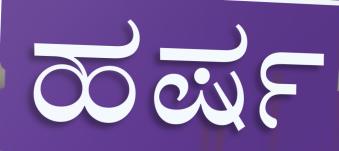
ಹರ್ಷ